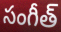
సంగీత్